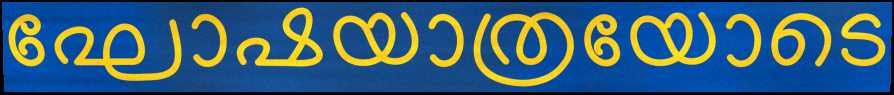
ഘോഷയാത്രയോടെ